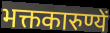
भक्तकारुण्यें